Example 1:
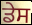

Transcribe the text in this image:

ਡੇਸ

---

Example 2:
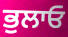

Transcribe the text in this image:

ਭੁਲਾਓ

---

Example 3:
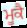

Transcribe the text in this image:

ਮੂਕੈ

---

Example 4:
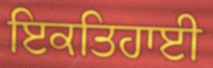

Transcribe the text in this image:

ਇਕਤਿਹਾਈ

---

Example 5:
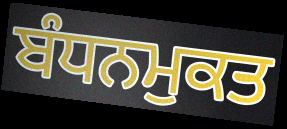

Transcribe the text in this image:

ਬੰਧਨਮੁਕਤ